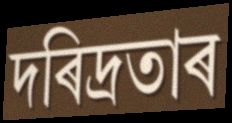
দৰিদ্ৰতাৰ